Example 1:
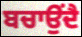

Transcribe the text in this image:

ਬਚਾਉਂਦੈ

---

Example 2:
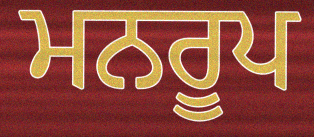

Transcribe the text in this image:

ਮਨਰੂਪ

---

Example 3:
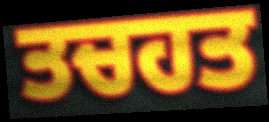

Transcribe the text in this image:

ਤਚਹਤ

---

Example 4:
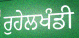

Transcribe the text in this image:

ਰੁਹੇਲਖੰਡੀ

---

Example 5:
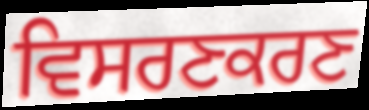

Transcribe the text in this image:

ਵਿਸਰਣਕਰਣ